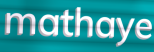
mathaye